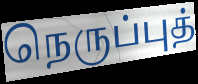
நெருப்புத்